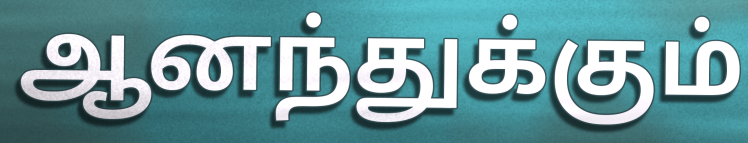
ஆனந்துக்கும்